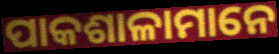
ପାକଶାଳାମାନେ